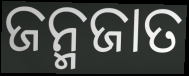
ଜନ୍ମଜାତ